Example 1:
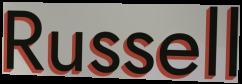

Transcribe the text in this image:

Russell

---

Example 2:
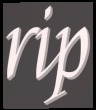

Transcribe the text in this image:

rip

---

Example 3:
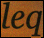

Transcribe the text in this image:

leq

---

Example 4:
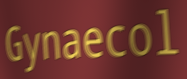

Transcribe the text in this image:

Gynaecol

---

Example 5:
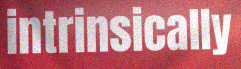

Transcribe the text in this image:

intrinsically